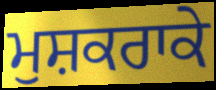
ਮੁਸ਼ਕਰਾਕੇ